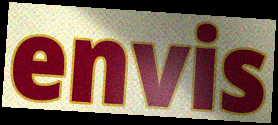
envis